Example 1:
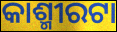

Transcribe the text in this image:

କାଶ୍ମୀରଟା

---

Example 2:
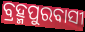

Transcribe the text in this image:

ବ୍ରହ୍ମପୁରବାସୀ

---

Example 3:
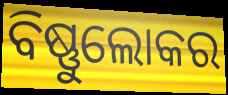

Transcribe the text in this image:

ବିଷ୍ଣୁଲୋକର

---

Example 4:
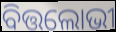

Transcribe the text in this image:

ବିତ୍ତଲୋଭୀ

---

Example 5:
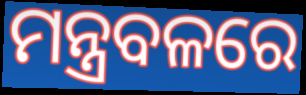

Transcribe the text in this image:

ମନ୍ତ୍ରବଳରେ